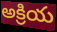
అక్రియ